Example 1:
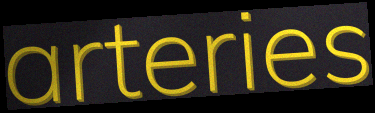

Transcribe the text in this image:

arteries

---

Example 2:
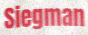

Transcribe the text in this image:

Siegman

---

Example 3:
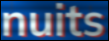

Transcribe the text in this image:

nuits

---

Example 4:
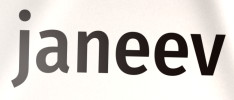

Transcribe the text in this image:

janeev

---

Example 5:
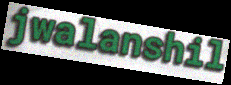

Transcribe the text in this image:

jwalanshil